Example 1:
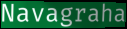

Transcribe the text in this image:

Navagraha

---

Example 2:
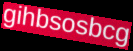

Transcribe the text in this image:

gihbsosbcg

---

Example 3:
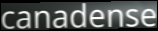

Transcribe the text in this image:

canadense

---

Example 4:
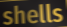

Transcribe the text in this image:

shells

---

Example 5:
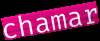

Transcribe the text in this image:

chamar